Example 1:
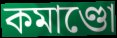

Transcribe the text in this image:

কমাণ্ডো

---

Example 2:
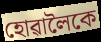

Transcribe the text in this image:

হোৱালৈকে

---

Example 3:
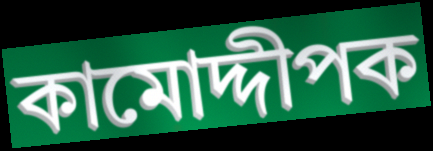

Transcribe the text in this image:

কামোদ্দীপক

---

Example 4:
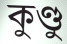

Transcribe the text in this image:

কুণ্ডু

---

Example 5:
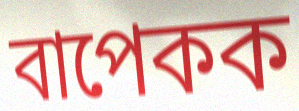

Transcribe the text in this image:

বাপেকক